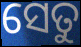
ସେତୁ